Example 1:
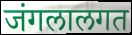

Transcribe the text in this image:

जंगलालगत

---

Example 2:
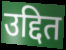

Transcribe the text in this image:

उद्दित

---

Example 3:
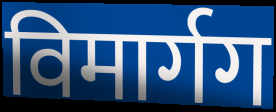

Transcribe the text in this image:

विमार्गग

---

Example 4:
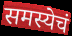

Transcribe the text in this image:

समस्येचं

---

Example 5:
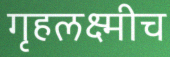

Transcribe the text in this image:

गृहलक्ष्मीच